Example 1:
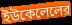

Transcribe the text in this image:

ইউকেলেলের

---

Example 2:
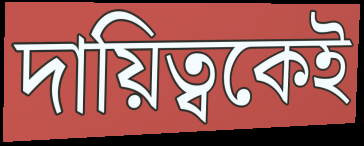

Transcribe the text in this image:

দায়িত্বকেই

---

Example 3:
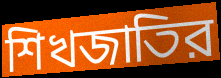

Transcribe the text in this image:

শিখজাতির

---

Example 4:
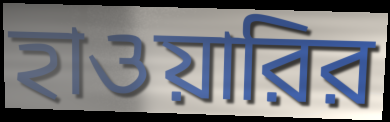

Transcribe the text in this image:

হাওয়ারির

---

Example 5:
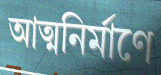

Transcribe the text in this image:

আত্মনির্মাণে